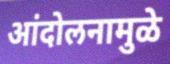
आंदोलनामुळे